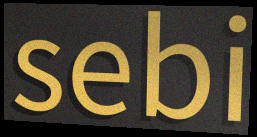
sebi